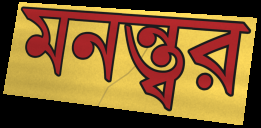
মনন্ত্বর